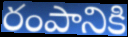
రంపానికి